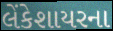
લેંકેશાયરના